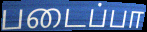
படைப்பா